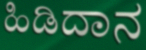
ಹಿಡಿದಾನ